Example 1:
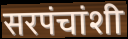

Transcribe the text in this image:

सरपंचांशी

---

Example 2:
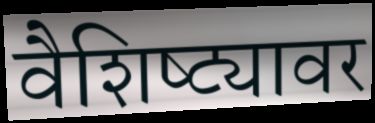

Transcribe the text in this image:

वैशिष्ट्यावर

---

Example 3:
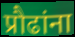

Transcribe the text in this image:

प्रौढांना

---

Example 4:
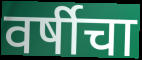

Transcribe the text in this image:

वर्षीचा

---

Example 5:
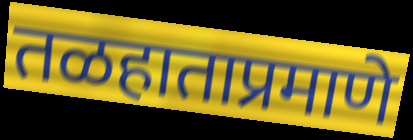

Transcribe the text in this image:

तळहाताप्रमाणे